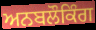
ਅਨਬਲੌਕਿੰਗ